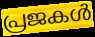
പ്രജകൾ